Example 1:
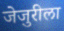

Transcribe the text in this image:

जेजुरीला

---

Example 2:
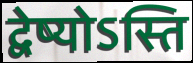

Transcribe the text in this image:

द्वेष्योऽस्ति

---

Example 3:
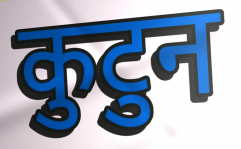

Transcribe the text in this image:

कुटुन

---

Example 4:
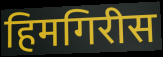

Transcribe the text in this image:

हिमगिरीस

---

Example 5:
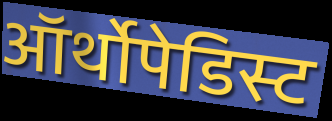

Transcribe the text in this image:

ऑर्थोपेडिस्ट